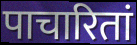
पाचारितां